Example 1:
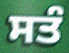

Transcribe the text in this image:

ਸਤੰ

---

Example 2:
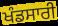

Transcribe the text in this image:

ਖੰਡਸਾਰੀ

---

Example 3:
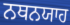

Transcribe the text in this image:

ਨਥਨਯਾਹ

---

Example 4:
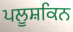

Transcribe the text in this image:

ਪਲੂਸ਼ਕਿਨ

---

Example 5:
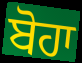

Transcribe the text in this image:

ਬੋਹਾ